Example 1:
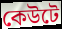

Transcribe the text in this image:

কেউটে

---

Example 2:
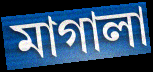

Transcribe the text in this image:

মাগালা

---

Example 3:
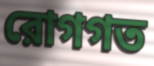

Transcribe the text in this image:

রোগগত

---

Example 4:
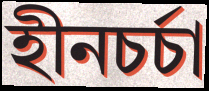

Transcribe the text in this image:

হীনচর্চা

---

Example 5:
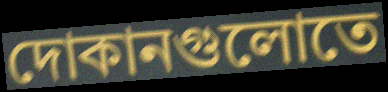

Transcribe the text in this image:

দোকানগুলোতে